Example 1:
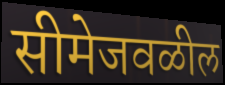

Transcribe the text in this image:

सीमेजवळील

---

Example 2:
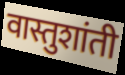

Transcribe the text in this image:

वास्तुशांती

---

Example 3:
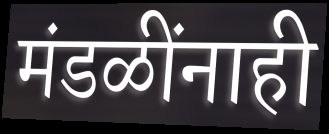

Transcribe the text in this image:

मंडळींनाही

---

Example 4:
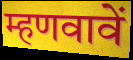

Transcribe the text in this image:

म्हणवावें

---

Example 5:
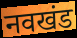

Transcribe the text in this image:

नवखंड